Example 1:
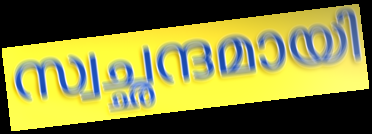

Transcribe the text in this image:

സ്വച്ഛന്ദമായി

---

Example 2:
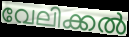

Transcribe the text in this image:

വേലിക്കൽ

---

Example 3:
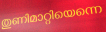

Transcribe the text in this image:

തുണിമാറ്റിയെന്നെ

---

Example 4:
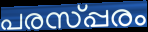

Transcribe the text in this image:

പരസ്പ്പരം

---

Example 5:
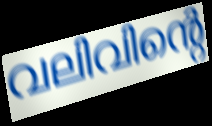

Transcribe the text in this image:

വലിവിന്റെ